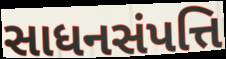
સાધનસંપત્તિ